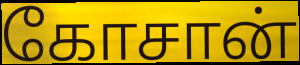
கோசான்